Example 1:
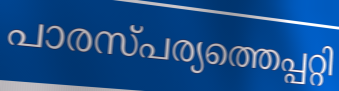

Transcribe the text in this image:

പാരസ്പര്യത്തെപ്പറ്റി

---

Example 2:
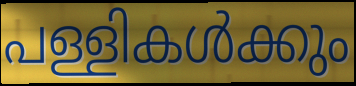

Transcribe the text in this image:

പള്ളികൾക്കും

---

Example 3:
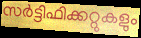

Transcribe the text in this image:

സർട്ടിഫിക്കറ്റുകളും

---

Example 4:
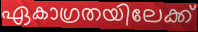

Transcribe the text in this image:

ഏകാഗ്രതയിലേക്ക്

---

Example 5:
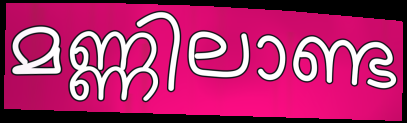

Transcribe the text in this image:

മണ്ണിലാണ്ട